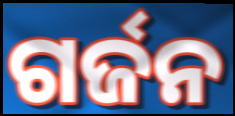
ଗର୍ଜନ